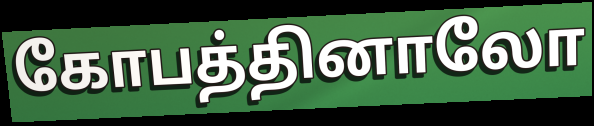
கோபத்தினாலோ